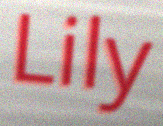
Lily